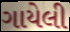
ગાયેલી